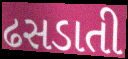
ઢસડાતી